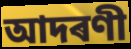
আদৰণী